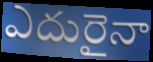
ఎదురైనా